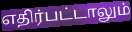
எதிர்பட்டாலும்